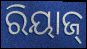
ରିୟାଜ୍